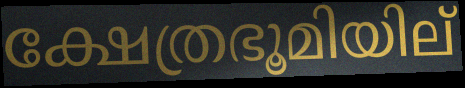
ക്ഷേത്രഭൂമിയില്